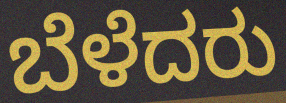
ಬೆಳೆದರು